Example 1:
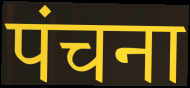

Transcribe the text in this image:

पंचना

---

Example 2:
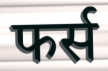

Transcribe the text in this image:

फर्स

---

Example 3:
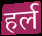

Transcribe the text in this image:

हर्ल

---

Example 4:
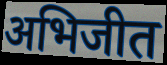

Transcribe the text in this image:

अभिजीत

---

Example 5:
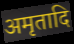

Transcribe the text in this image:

अमृतादि